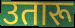
उतारू